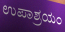
ಉಪಾಶ್ರಯಂ